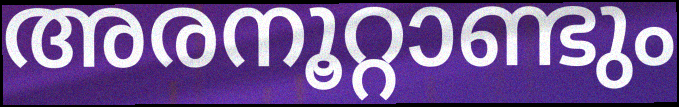
അരനൂറ്റാണ്ടും